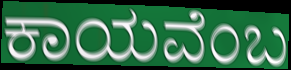
ಕಾಯವೆಂಬ